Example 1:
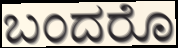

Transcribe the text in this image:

ಬಂದರೊ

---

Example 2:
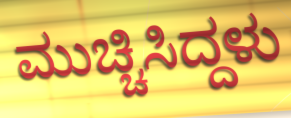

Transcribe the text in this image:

ಮುಚ್ಚಿಸಿದ್ದಳು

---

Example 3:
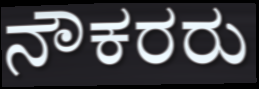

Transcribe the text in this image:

ನೌಕರರು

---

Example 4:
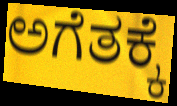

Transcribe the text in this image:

ಅಗೆತಕ್ಕೆ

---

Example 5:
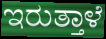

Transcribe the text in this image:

ಇರುತ್ತಾಳೆ